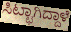
ಸಿಟ್ಟಾಗಿದ್ದಾಳೆ